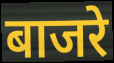
बाजरे